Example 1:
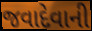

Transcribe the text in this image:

જવાદેવાની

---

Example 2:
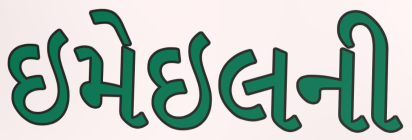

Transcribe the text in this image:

ઇમેઇલની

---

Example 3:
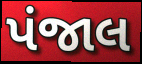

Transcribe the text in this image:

પંજાલ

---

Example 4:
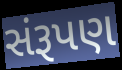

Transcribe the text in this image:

સંરૂપણ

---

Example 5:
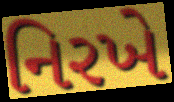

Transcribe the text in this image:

નિરખે